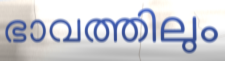
ഭാവത്തിലും